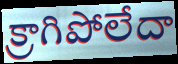
క్రాగిపోలేదా